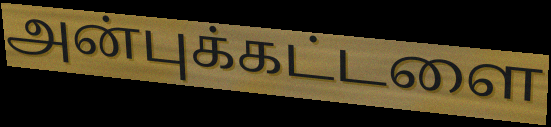
அன்புக்கட்டளை